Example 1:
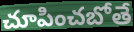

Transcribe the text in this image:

చూపించబోతే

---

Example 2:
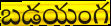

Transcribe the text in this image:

బడయంగ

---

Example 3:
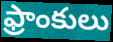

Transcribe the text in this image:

ఫ్రాంకులు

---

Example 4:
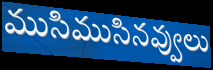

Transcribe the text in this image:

ముసిముసినవ్వులు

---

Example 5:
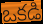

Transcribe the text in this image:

ఒకడి